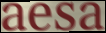
aesa